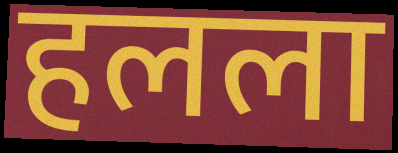
हलला